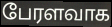
பேரளவாக